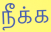
நீக்க